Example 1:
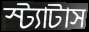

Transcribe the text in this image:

স্ট্যাটাস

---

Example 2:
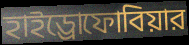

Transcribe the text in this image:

হাইড্রোফোবিয়ার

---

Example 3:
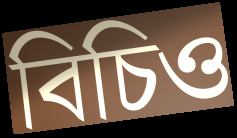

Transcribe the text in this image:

বিচিও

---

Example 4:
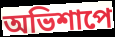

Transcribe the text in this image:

অভিশাপে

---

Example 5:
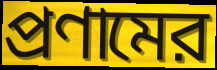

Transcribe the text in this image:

প্রণামের